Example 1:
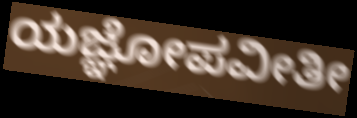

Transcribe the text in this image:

ಯಜ್ಞೋಪವೀತೀ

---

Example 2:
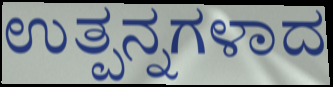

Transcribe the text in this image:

ಉತ್ಪನ್ನಗಳಾದ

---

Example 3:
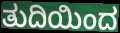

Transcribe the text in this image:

ತುದಿಯಿಂದ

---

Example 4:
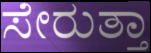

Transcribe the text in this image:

ಸೇರುತ್ತಾ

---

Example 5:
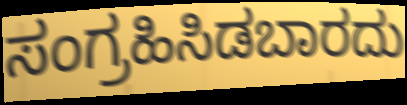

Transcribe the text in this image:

ಸಂಗ್ರಹಿಸಿಡಬಾರದು